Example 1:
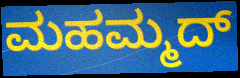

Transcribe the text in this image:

ಮಹಮ್ಮದ್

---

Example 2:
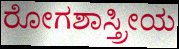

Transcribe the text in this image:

ರೋಗಶಾಸ್ತ್ರೀಯ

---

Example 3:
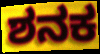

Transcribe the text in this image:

ಶನಕ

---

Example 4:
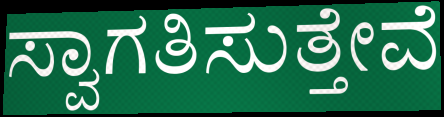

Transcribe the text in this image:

ಸ್ವಾಗತಿಸುತ್ತೇವೆ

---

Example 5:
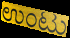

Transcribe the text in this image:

ಉಂಟು